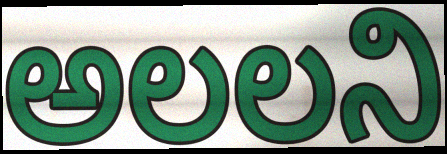
అలలని